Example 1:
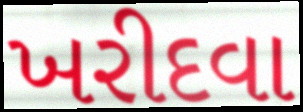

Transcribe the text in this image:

ખરીદવા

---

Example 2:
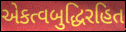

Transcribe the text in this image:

એકત્વબુદ્ધિરહિત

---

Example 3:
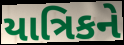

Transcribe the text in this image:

યાત્રિકને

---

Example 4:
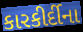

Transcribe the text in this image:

કારકીર્દીના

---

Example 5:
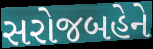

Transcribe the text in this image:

સરોજબહેને